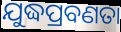
ଯୁଦ୍ଧପ୍ରବଣତା